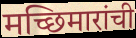
मच्छिमारांची